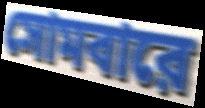
সোমবারে